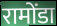
रामोंडा